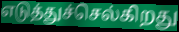
எடுத்துச்செல்கிறது